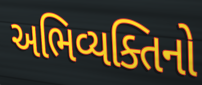
અભિવ્યક્તિનો